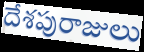
దేశపురాజులు